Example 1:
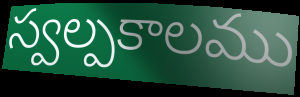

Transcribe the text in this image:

స్వల్పకాలము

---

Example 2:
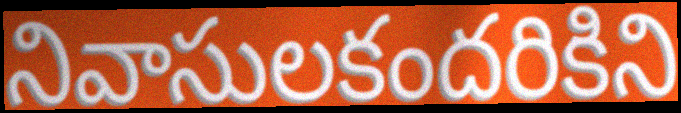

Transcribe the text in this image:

నివాసులకందరికిని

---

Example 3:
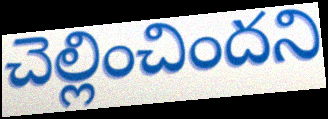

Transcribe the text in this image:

చెల్లించిందని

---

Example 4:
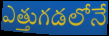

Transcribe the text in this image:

ఎత్తుగడలోనే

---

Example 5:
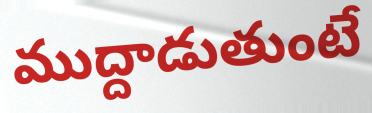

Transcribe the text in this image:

ముద్దాడుతుంటే